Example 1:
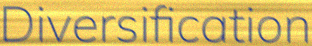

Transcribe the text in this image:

Diversification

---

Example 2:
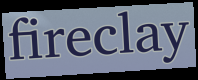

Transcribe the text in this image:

fireclay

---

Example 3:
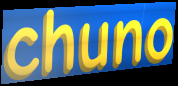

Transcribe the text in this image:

chuno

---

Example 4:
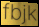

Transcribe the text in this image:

fbjk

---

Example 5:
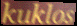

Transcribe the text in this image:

kuklos